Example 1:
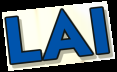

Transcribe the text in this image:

LAI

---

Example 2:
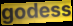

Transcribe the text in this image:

godess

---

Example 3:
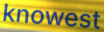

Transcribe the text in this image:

knowest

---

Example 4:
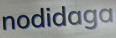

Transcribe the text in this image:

nodidaga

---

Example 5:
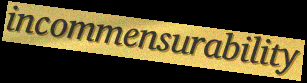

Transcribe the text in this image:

incommensurability